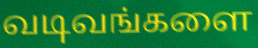
வடிவங்களை